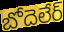
బోదెలేర్